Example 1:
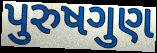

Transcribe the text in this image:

પુરુષગુણ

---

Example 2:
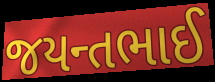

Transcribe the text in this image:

જયન્તભાઈ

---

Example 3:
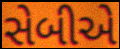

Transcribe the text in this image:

સેબીએ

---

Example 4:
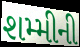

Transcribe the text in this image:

શમ્મીની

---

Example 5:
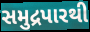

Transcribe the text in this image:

સમુદ્રપારથી